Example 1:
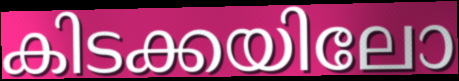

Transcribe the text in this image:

കിടക്കയിലോ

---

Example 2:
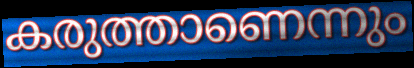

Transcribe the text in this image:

കരുത്താണെന്നും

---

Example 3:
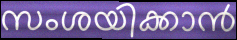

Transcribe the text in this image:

സംശയിക്കാൻ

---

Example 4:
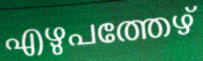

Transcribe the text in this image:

എഴുപത്തേഴ്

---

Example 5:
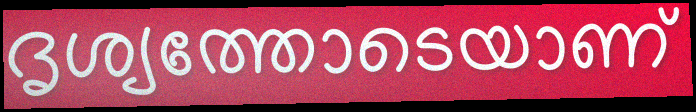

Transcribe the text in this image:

ദൃശ്യത്തോടെയാണ്